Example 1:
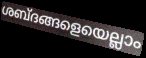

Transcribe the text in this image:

ശബ്ദങ്ങളെയെല്ലാം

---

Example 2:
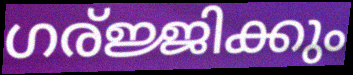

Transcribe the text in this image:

ഗര്ജ്ജിക്കും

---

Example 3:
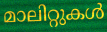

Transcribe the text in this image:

മാലിറ്റുകൾ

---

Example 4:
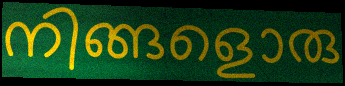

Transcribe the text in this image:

നിങ്ങളൊരു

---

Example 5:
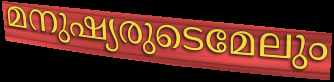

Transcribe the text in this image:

മനുഷ്യരുടെമേലും